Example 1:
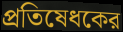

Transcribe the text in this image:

প্রতিষেধকের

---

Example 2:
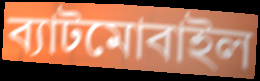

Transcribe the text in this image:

ব্যাটমোবাইল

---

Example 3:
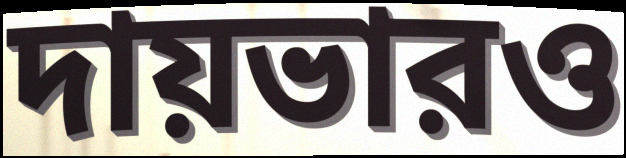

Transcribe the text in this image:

দায়ভারও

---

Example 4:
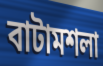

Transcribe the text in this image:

বাটামশলা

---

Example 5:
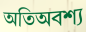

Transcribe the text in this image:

অতিঅবশ্য